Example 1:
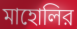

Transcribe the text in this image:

মাহোলির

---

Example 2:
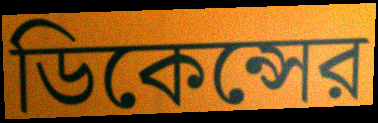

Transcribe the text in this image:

ডিকেন্সের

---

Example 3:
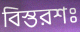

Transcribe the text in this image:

বিস্তরশঃ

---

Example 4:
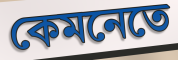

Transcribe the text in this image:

কেমনেতে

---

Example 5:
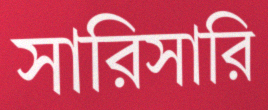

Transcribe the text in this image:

সারিসারি